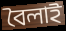
বৈলাই